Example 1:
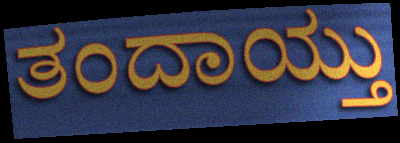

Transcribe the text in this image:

ತಂದಾಯ್ತು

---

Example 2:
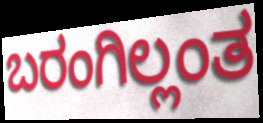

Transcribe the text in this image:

ಬರಂಗಿಲ್ಲಂತ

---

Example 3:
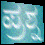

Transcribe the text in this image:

ಪ್ರಶ್ನ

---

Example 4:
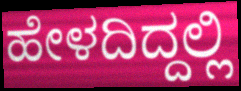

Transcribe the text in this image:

ಹೇಳದಿದ್ದಲ್ಲಿ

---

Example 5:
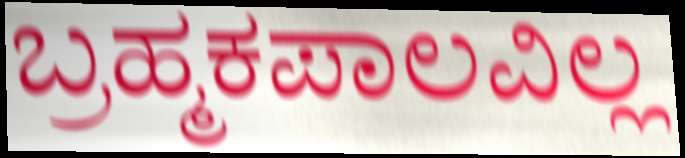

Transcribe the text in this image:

ಬ್ರಹ್ಮಕಪಾಲವಿಲ್ಲ